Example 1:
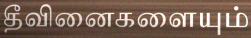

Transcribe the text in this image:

தீவினைகளையும்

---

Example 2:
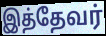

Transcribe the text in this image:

இத்தேவர்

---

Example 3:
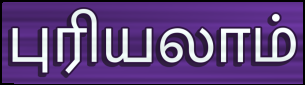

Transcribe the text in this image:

புரியலாம்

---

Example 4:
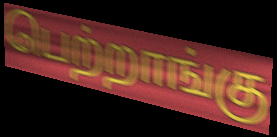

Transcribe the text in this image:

பெற்றாங்கு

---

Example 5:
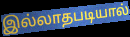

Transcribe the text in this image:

இல்லாதபடியால்